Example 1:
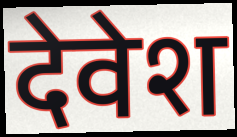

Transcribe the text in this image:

देवेश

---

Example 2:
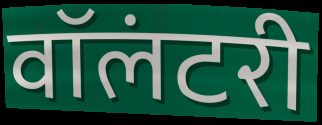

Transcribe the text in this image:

वॉलंटरी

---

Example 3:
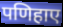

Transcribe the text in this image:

पणिहाए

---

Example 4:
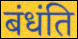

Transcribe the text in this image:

बंधंति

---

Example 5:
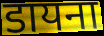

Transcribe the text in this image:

डायना